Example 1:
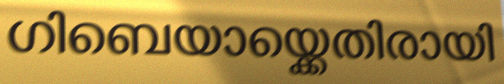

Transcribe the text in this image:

ഗിബെയായ്ക്കെതിരായി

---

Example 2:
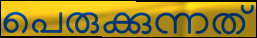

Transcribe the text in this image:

പെരുക്കുന്നത്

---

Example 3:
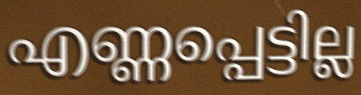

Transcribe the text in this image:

എണ്ണപ്പെട്ടില്ല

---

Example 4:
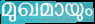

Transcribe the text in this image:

മുഖമായും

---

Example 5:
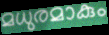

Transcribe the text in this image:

മധുരമാകും